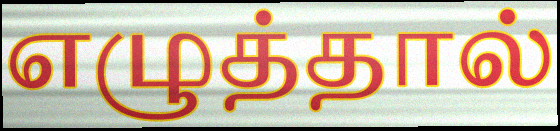
எழுத்தால்